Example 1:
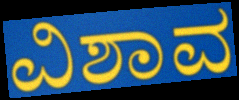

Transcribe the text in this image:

ವಿಶಾವ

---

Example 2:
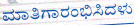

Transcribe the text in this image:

ಮಾತಿಗಾರಂಭಿಸಿದಳು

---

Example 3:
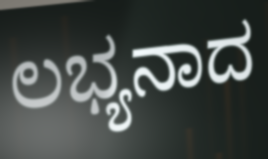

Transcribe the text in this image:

ಲಭ್ಯನಾದ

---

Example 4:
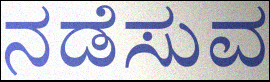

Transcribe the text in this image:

ನಡೆಸುವ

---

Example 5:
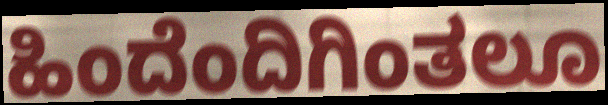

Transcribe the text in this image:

ಹಿಂದೆಂದಿಗಿಂತಲೂ